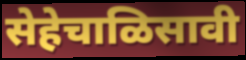
सेहेचाळिसावी